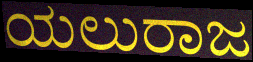
ಯಲುರಾಜ